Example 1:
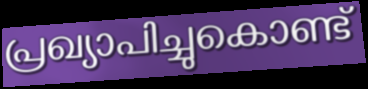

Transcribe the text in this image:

പ്രഖ്യാപിച്ചുകൊണ്ട്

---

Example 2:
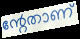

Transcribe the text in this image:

ന്റേതാണ്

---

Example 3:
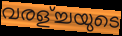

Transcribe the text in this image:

വരള്ച്ചയുടെ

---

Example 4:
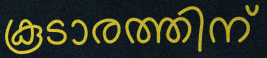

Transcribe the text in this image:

കൂടാരത്തിന്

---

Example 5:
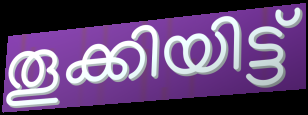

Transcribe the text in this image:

തൂക്കിയിട്ട്